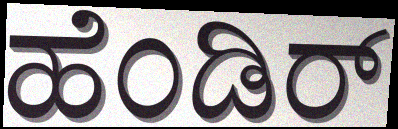
ಹೆಂಡಿರ್